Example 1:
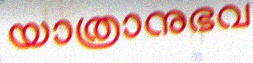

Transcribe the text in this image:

യാത്രാനുഭവ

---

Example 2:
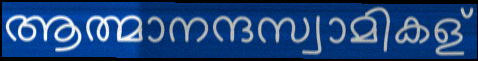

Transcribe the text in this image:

ആത്മാനന്ദസ്വാമികള്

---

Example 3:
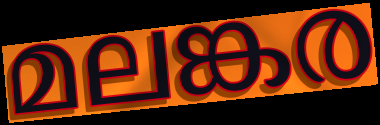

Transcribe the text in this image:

മലങ്കര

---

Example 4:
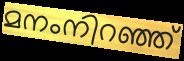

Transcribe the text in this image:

മനംനിറഞ്ഞ്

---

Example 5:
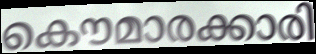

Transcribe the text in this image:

കൌമാരക്കാരി